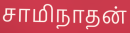
சாமிநாதன்